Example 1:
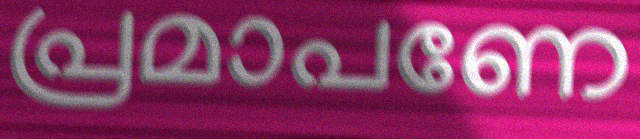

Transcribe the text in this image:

പ്രമാപണേ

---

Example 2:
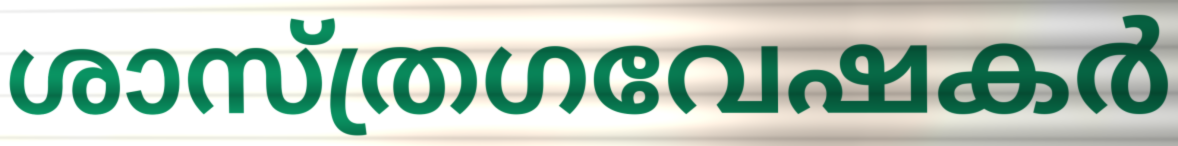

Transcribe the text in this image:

ശാസ്ത്രഗവേഷകർ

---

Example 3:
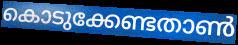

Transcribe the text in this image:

കൊടുക്കേണ്ടതാൺ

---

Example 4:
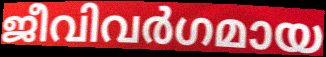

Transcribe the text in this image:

ജീവിവർഗമായ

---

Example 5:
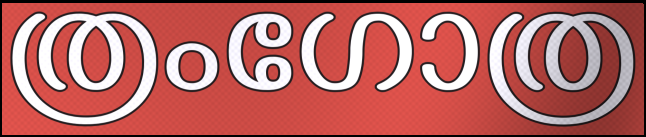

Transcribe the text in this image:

ത്രംഗോത്ര